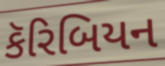
કૅરિબિયન